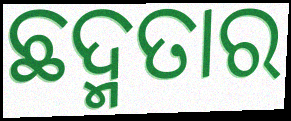
ଛଦ୍ମତାର